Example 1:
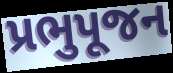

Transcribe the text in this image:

પ્રભુપૂજન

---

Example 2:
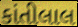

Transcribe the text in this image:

કાંતીલાલ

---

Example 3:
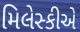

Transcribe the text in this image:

મિલેસ્કીએ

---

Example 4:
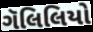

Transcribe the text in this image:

ગૅલિલિયો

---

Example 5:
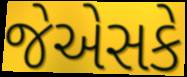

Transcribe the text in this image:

જેએસકે